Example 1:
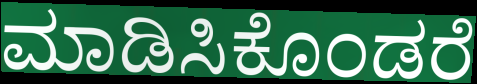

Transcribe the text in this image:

ಮಾಡಿಸಿಕೊಂಡರೆ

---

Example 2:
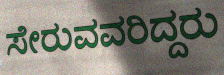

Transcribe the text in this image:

ಸೇರುವವರಿದ್ದರು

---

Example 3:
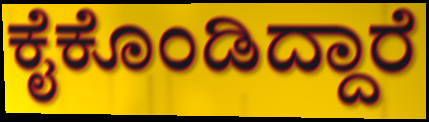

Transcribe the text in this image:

ಕೈಕೊಂಡಿದ್ದಾರೆ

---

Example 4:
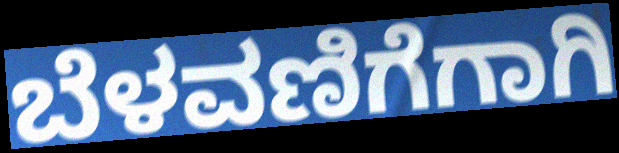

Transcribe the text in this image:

ಬೆಳವಣಿಗೆಗಾಗಿ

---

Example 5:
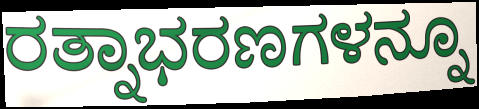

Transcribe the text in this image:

ರತ್ನಾಭರಣಗಳನ್ನೂ